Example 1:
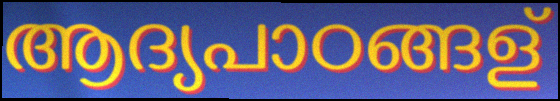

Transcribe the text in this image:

ആദ്യപാഠങ്ങള്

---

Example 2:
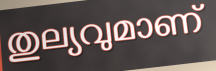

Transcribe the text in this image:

തുല്യവുമാണ്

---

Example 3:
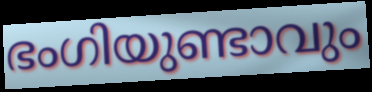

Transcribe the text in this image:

ഭംഗിയുണ്ടാവും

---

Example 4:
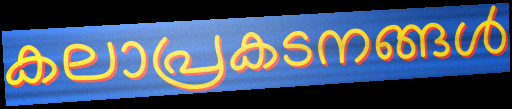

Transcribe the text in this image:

കലാപ്രകടനങ്ങൾ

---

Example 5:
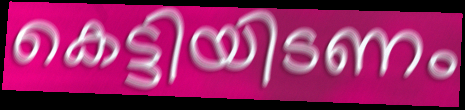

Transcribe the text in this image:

കെട്ടിയിടണം